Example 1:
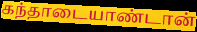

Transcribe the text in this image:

கந்தாடையாண்டான்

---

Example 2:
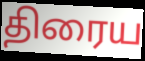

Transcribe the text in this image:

திரைய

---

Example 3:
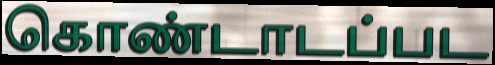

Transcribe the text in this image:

கொண்டாடப்பட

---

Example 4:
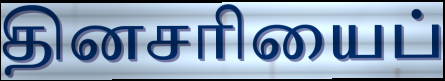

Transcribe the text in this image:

தினசரியைப்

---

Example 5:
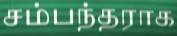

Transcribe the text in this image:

சம்பந்தராக